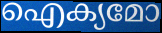
ഐക്യമോ